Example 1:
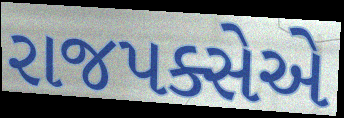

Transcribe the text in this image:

રાજપક્સેએ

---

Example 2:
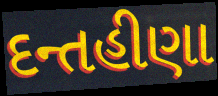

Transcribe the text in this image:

દન્તહીણા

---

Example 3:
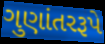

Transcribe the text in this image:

ગુણાંતરરૂપે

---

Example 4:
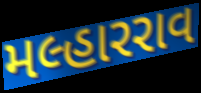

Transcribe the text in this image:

મલ્હારરાવ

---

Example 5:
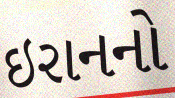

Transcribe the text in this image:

ઇરાનનો